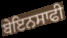
ਬੇਇਨਸਾਫੀ